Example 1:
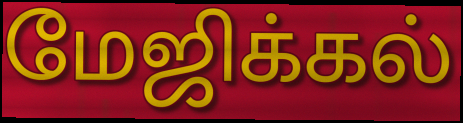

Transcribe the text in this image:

மேஜிக்கல்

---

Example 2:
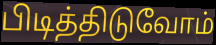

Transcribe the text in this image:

பிடித்திடுவோம்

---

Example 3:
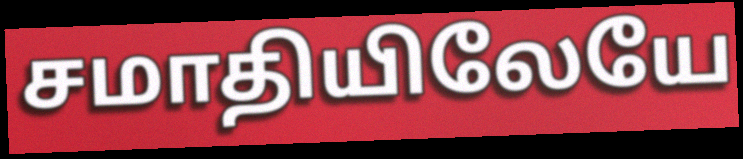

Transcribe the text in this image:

சமாதியிலேயே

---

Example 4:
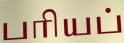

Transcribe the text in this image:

பரியப்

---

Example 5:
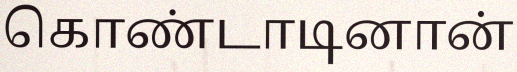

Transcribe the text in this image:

கொண்டாடினான்